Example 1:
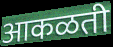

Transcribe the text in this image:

आकळती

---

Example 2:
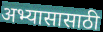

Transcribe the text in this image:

अभ्यासासाठी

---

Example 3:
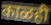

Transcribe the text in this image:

काळही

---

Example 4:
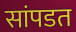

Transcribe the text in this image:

सांपडत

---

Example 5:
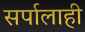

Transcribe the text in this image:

सर्पालाही